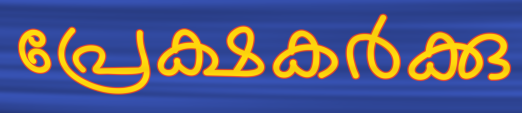
പ്രേക്ഷകർക്കു